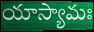
యాస్యామః